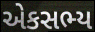
એકસભ્ય